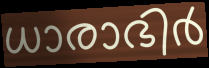
ധാരാഭിർ